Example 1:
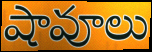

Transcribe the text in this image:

షావూలు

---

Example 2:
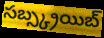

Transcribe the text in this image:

సబ్స్క్రయిబ్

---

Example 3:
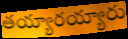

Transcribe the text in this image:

తయ్యారయ్యారు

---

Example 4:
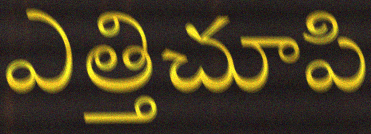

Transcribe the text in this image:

ఎత్తిచూపి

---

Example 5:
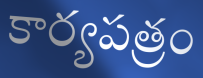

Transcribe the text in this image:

కార్యపత్రం